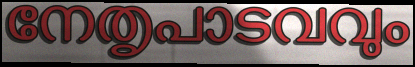
നേതൃപാടവവും